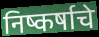
निष्कर्षाचे